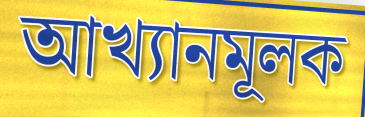
আখ্যানমূলক